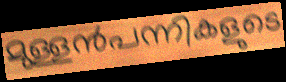
മുള്ളൻപന്നികളുടെ